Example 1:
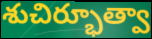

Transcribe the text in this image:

శుచిర్భూత్వా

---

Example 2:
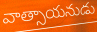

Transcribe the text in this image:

వాత్సాయనుడు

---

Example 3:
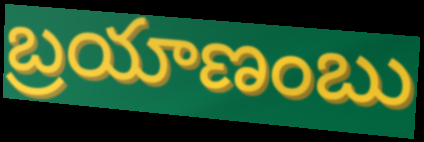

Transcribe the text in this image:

బ్రయాణంబు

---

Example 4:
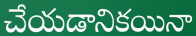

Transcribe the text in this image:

చేయడానికయినా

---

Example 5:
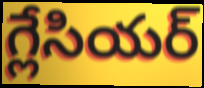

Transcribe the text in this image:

గ్లేసియర్